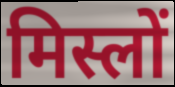
मिस्लों